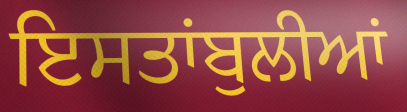
ਇਸਤਾਂਬੁਲੀਆਂ